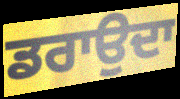
ਡਰਾਉਦਾ